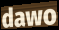
dawo